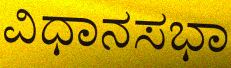
ವಿಧಾನಸಭಾ